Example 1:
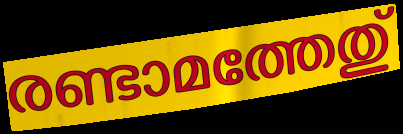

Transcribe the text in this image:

രണ്ടാമത്തേതു്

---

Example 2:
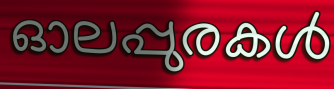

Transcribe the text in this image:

ഓലപ്പുരകൾ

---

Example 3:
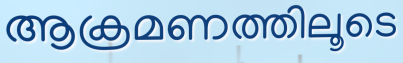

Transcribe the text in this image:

ആക്രമണത്തിലൂടെ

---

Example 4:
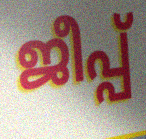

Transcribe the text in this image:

ജീപ്പ്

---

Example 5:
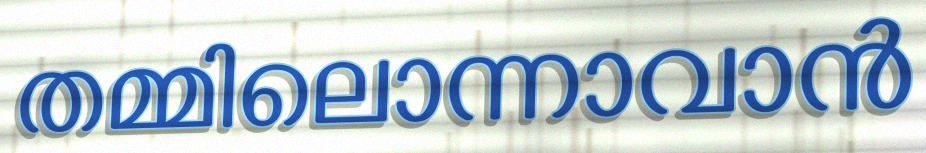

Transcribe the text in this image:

തമ്മിലൊന്നാവാൻ